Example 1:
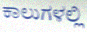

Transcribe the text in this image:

ಕಾಲುಗಳಲ್ಲಿ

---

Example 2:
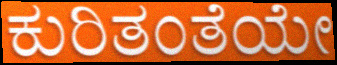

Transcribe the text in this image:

ಕುರಿತಂತೆಯೇ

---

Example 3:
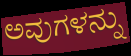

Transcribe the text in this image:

ಅವುಗಳನ್ನು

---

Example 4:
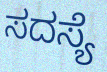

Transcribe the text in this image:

ಸದಸ್ಯೆ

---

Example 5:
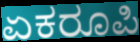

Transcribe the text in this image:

ಏಕರೂಪಿ